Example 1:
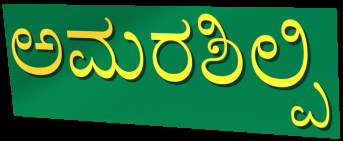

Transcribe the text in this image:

ಅಮರಶಿಲ್ಪಿ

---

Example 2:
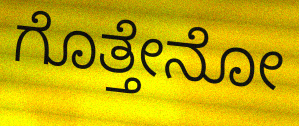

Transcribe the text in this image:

ಗೊತ್ತೇನೋ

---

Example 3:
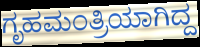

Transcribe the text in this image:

ಗೃಹಮಂತ್ರಿಯಾಗಿದ್ದ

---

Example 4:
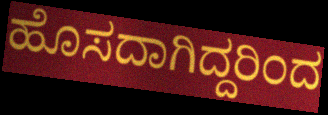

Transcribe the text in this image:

ಹೊಸದಾಗಿದ್ದರಿಂದ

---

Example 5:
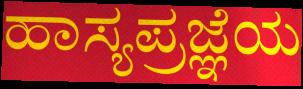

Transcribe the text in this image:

ಹಾಸ್ಯಪ್ರಜ್ಞೆಯ